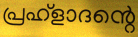
പ്രഹ്ളാദന്റെ